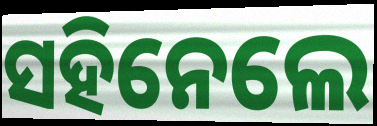
ସହିନେଲେ